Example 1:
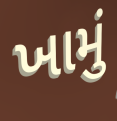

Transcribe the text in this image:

ખામું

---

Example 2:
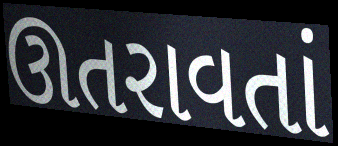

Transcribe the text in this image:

ઊતરાવતાં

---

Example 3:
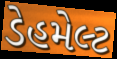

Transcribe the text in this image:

ડેહમેલ્ટ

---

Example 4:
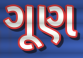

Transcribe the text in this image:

ગૂણ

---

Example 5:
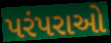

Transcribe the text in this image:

પરંપરાઓ